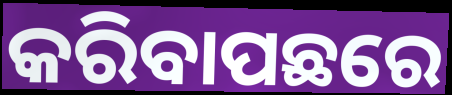
କରିବାପଛରେ